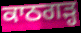
ਕਾਠਗਡ਼੍ਹ